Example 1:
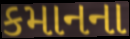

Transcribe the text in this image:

કમાનના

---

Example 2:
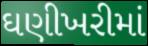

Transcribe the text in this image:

ઘણીખરીમાં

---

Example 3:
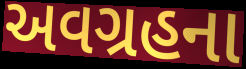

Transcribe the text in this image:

અવગ્રહના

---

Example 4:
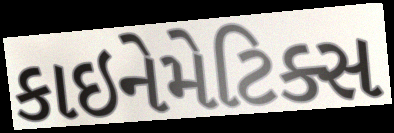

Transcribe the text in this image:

કાઇનેમેટિક્સ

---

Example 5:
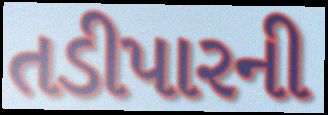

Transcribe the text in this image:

તડીપારની